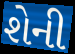
શેની